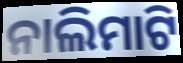
ନାଲିମାଟି